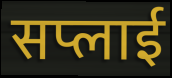
सप्लाई